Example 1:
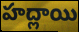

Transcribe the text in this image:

హద్లాయి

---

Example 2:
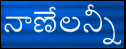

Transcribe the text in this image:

నాణేలన్నీ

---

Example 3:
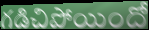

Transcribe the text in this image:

గడిచిపోయిందో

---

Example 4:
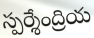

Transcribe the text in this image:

స్పర్శేంద్రియ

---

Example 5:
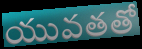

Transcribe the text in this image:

యువతతో